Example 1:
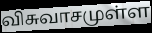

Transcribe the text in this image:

விசுவாசமுள்ள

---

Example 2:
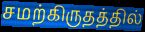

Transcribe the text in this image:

சமற்கிருதத்தில்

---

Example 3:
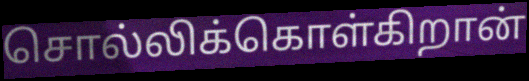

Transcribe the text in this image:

சொல்லிக்கொள்கிறான்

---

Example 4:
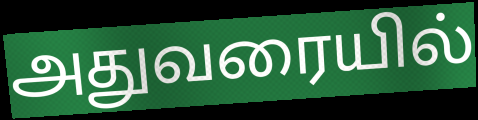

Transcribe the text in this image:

அதுவரையில்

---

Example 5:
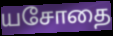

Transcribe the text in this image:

யசோதை